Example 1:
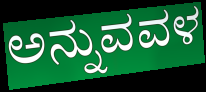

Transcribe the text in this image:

ಅನ್ನುವವಳ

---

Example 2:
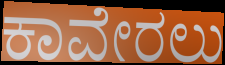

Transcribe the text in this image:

ಕಾವೇರಲು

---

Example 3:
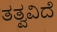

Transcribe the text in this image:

ತತ್ವವಿದೆ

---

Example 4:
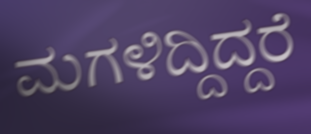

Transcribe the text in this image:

ಮಗಳಿದ್ದಿದ್ದರೆ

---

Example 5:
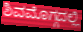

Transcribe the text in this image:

ಶಿವಮೊಗ್ಗದಲ್ಲಿ